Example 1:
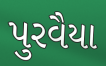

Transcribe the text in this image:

પુરવૈયા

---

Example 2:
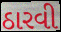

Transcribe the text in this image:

ઠારવી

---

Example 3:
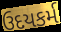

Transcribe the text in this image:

ઉદયકર્મ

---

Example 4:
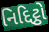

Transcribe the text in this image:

નિદ્દિટ્ઠો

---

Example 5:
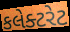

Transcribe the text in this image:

કલેક્ટરેટ